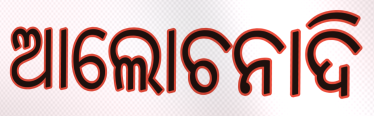
ଆଲୋଚନାଦି